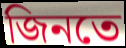
জিনতে